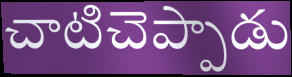
చాటిచెప్పాడు